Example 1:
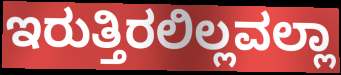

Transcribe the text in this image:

ಇರುತ್ತಿರಲಿಲ್ಲವಲ್ಲಾ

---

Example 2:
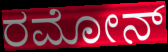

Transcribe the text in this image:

ರಮೋನ್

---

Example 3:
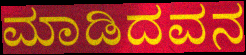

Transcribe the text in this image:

ಮಾಡಿದವನ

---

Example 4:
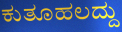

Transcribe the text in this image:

ಕುತೂಹಲದ್ದು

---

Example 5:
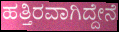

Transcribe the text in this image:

ಹತ್ತಿರವಾಗಿದ್ದೇನೆ